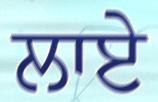
ਲਾਏ